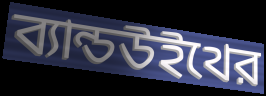
ব্যান্ডউইথের